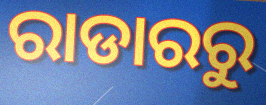
ରାଡାରରୁ